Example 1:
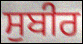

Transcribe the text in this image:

ਸੁਬੀਰ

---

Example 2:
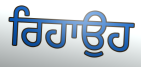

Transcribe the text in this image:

ਰਿਹਾਉਹ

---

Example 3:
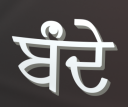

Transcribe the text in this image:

ਬਂੰਦੇ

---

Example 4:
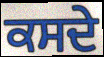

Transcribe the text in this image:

ਕਸਦੇ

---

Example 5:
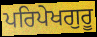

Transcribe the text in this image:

ਪਰਿਪੇਖਗੁਰੂ